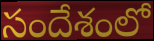
సందేశంలో